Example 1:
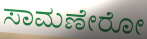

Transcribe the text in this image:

ಸಾಮಣೇರೋ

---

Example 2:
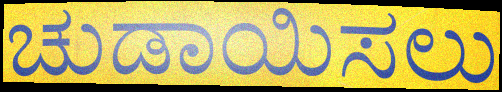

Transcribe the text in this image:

ಚುಡಾಯಿಸಲು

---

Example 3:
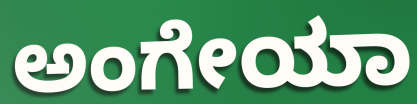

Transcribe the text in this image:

ಅಂಗೇಯಾ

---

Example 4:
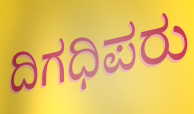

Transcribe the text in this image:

ದಿಗಧಿಪರು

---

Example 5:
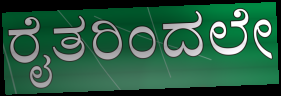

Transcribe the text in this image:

ರೈತರಿಂದಲೇ